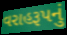
વરાહરૂપનું